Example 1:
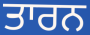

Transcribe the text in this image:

ਤਾਰਨ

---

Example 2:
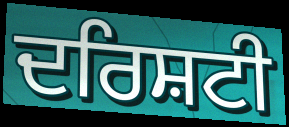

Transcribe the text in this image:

ਦਰਿਸ਼ਟੀ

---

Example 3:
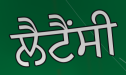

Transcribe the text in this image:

ਲੈਟੈਂਸੀ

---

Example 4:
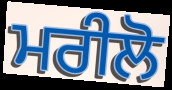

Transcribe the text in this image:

ਮਰੀਲੋ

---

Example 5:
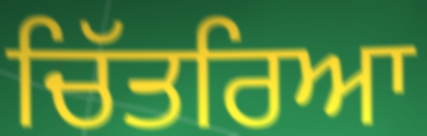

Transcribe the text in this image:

ਚਿੱਤਰਿਆ